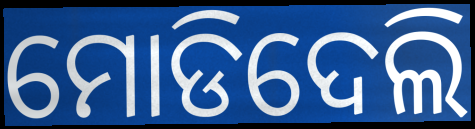
ମୋଡିଦେଲି